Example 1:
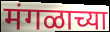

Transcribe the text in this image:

मंगळाच्या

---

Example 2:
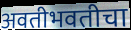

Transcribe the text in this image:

अवतीभवतीचा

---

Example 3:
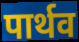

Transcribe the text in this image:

पार्थव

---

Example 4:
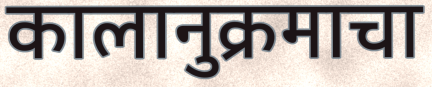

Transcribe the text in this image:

कालानुक्रमाचा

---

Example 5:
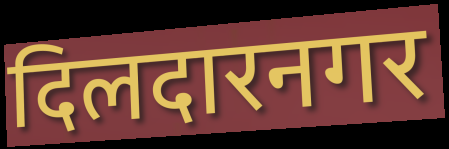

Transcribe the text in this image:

दिलदारनगर